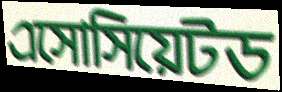
এসোসিয়েটড